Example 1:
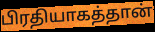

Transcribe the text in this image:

பிரதியாகத்தான்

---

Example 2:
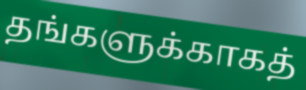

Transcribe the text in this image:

தங்களுக்காகத்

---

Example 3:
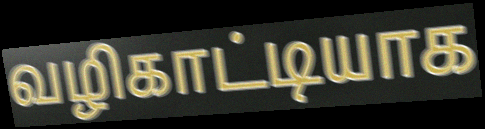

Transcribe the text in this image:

வழிகாட்டியாக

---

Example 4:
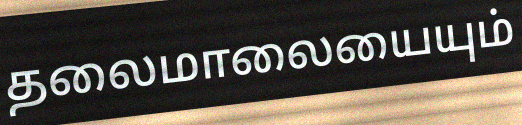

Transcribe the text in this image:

தலைமாலையையும்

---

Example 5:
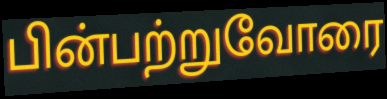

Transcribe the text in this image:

பின்பற்றுவோரை